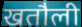
खतौली